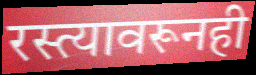
रस्त्यावरूनही